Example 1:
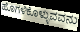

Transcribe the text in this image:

ಹೊಗಳಿಕೊಳ್ಳುವವನು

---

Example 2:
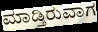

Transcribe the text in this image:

ಮಾಡ್ತಿರುವಾಗ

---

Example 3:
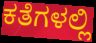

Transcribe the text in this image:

ಕತೆಗಳಲ್ಲಿ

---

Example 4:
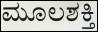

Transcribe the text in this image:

ಮೂಲಶಕ್ತಿ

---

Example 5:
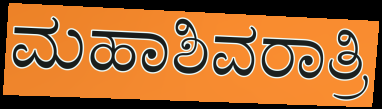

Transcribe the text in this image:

ಮಹಾಶಿವರಾತ್ರಿ